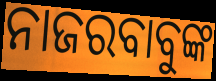
ନାଜରବାବୁଙ୍କ